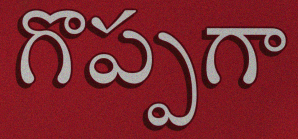
గొప్పగా